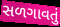
સળગાવતું